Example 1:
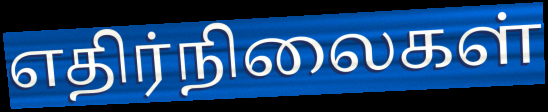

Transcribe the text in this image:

எதிர்நிலைகள்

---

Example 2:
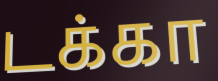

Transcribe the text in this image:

டக்கா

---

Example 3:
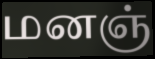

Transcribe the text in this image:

மனஞ்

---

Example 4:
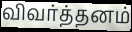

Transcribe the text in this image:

விவர்த்தனம்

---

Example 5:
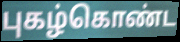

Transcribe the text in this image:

புகழ்கொண்ட